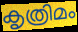
കൃത്രിമം